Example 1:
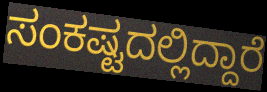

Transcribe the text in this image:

ಸಂಕಷ್ಟದಲ್ಲಿದ್ದಾರೆ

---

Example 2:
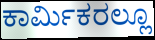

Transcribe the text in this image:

ಕಾರ್ಮಿಕರಲ್ಲೂ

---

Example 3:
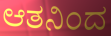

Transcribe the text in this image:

ಆತನಿಂದ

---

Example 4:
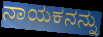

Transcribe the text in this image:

ನಾಯಕನನ್ನು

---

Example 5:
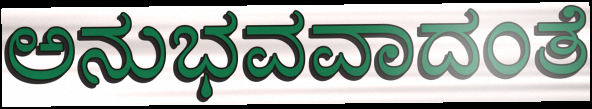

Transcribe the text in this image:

ಅನುಭವವಾದಂತೆ